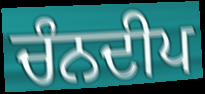
ਚੰਨਦੀਪ